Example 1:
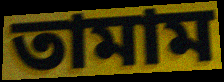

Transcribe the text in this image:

তামাম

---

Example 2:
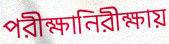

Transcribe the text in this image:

পরীক্ষানিরীক্ষায়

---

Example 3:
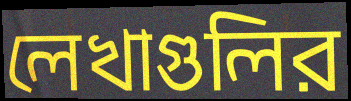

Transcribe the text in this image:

লেখাগুলির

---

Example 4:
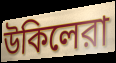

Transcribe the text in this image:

উকিলেরা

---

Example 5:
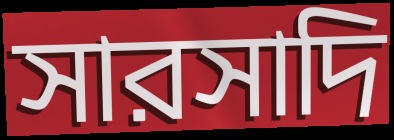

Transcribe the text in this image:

সারসাদি